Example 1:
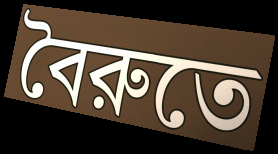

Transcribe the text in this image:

বৈরুতে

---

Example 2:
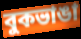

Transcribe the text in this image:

বুকভাঙা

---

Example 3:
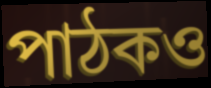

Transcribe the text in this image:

পাঠকও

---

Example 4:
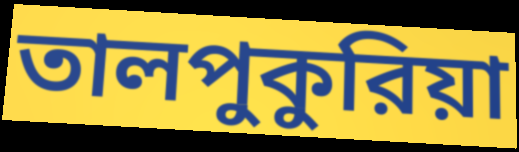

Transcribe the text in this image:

তালপুকুরিয়া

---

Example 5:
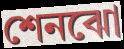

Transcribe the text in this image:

শেনঝো